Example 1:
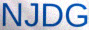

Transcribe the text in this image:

NJDG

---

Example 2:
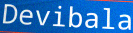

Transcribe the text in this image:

Devibala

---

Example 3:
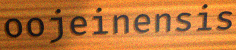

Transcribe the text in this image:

oojeinensis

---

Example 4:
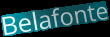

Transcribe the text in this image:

Belafonte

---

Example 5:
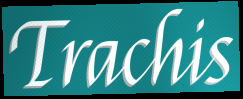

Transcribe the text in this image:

Trachis